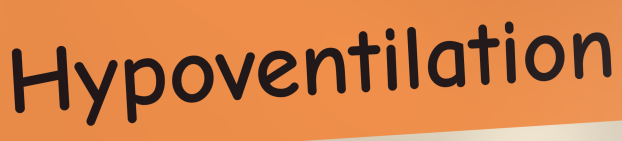
Hypoventilation